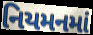
નિયમનમાં